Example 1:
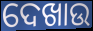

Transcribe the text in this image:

ଦେଖାଉ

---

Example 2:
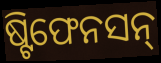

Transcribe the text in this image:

ଷ୍ଟିଫେନସନ୍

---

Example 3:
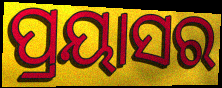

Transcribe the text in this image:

ପ୍ରୟାସର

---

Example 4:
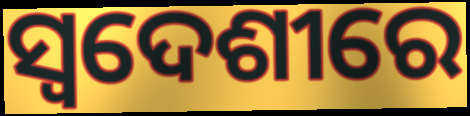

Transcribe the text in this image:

ସ୍ୱଦେଶୀରେ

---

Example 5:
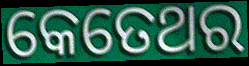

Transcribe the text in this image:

କେତେଥର